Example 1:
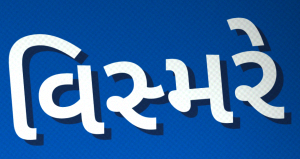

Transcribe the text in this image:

વિસ્મરે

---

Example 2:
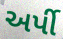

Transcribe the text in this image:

અર્પી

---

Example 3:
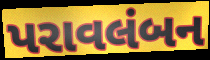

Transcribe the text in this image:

પરાવલંબન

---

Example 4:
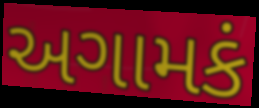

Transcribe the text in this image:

અગામકં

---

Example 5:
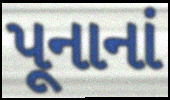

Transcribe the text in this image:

પૂનાનાં